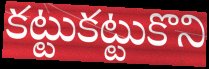
కట్టుకట్టుకొని